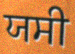
ਯਸੀ